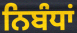
ਨਿਬੰਧਾਂ